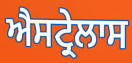
ਐਸਟ੍ਰੇਲਾਸ